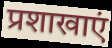
प्रशाखाएं